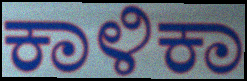
ಕಾಳಿಕಾ